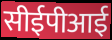
सीईपीआई